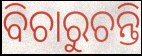
ବିଚାରୁଚନ୍ତି